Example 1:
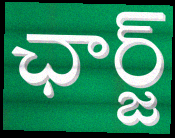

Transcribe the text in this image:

ఛార్జ్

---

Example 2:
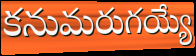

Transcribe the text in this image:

కనుమరుగయ్యే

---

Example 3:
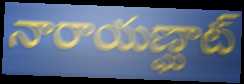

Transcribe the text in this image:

నారాయణ్ఘాట్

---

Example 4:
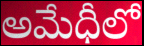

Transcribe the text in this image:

అమేధీలో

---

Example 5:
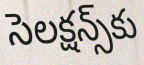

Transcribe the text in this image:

సెలక్షన్స్‌కు